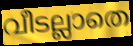
വീടല്ലാതെ